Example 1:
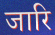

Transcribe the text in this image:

जारि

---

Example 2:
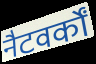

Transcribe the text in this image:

नैटवर्कों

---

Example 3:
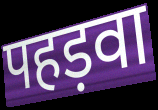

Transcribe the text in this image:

पहड़वा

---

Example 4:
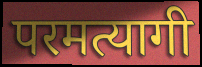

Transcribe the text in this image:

परमत्यागी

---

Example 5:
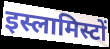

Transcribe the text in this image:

इस्लामिस्टों